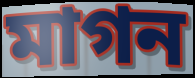
মাগন